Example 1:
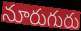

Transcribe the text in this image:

నూరుగురు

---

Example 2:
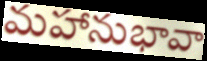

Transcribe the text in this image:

మహానుభావా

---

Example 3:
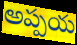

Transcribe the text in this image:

అప్పయ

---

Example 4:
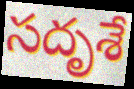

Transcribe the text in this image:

సదృశే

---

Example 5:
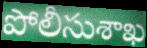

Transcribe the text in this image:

పోలీసుశాఖ